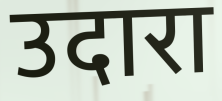
उदारा